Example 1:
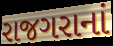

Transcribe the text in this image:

રાજગરાનાં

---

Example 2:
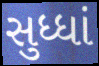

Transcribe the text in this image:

સુધ્ધાં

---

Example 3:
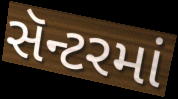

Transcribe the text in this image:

સૅન્ટરમાં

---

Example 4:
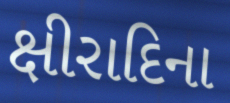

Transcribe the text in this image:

ક્ષીરાદિના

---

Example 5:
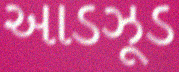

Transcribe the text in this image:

આડઝૂડ